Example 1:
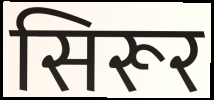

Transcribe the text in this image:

सिरूर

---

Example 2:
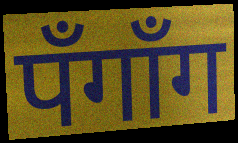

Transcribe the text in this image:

पँगाँग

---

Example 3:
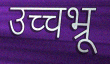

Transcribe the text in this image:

उच्चभ्रू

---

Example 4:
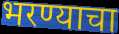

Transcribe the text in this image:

भरण्याचा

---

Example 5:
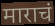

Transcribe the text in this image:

माराचं